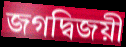
জগদ্বিজয়ী